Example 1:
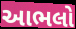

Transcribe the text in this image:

આભલો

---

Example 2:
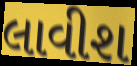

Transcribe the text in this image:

લાવીશ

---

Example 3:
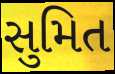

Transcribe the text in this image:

સુમિત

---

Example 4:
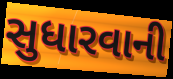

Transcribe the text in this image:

સુધારવાની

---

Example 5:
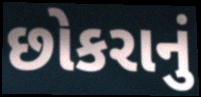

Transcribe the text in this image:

છોકરાનું